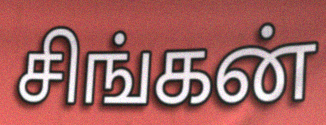
சிங்கன்